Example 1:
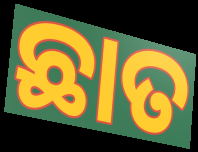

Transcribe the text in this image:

ଛାତ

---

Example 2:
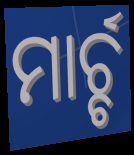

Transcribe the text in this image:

ମାର୍ଚ୍ଚ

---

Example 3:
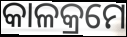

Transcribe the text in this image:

କାଳକ୍ରମେ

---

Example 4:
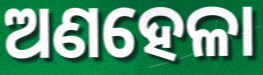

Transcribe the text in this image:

ଅଣହେଳା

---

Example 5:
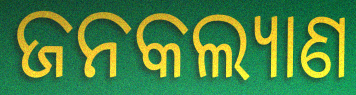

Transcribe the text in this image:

ଜନକଲ୍ୟାଣ